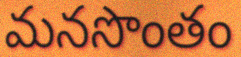
మనసొంతం